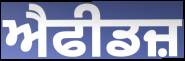
ਐਫੀਡਜ਼